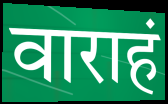
वाराहं